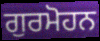
ਗੁਰਮੋਹਨ